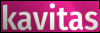
kavitas